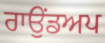
ਰਾਉਂਡਅਪ